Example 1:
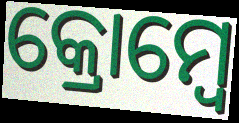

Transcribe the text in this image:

କ୍ରୋମ୍ବେ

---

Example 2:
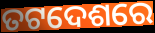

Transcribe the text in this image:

ତଟଦେଶରେ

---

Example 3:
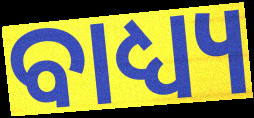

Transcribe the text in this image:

ବାଧ୍ୟ୍ୟ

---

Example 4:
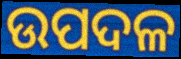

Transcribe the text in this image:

ଉପଦଳ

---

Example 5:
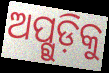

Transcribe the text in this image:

ଅପ୍ଗୁଡ଼ିକୁ